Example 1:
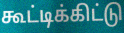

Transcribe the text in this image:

கூட்டிக்கிட்டு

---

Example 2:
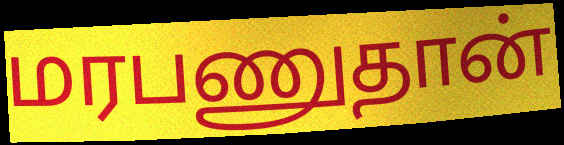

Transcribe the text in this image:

மரபணுதான்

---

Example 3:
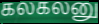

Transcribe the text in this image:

கலகலனு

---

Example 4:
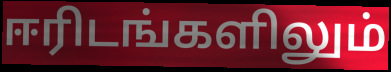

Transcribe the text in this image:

ஈரிடங்களிலும்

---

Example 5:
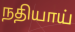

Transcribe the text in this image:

நதியாய்